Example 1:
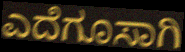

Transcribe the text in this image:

ಎದೆಗೂಸಾಗಿ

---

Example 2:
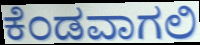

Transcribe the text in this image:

ಕೆಂಡವಾಗಲಿ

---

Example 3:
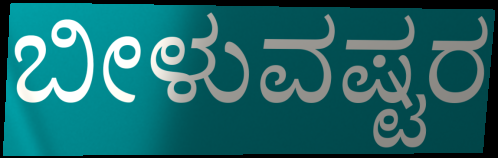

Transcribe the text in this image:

ಬೀಳುವಷ್ಟರ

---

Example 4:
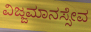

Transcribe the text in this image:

ವಿಜ್ಜಮಾನಸ್ಸೇವ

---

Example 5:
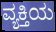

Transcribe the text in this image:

ವ್ಯಕ್ತಿಯ